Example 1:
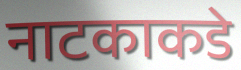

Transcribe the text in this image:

नाटकाकडे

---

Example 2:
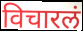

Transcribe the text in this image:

विचारलं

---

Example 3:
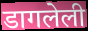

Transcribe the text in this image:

डागलेली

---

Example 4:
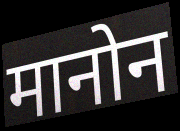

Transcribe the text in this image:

मानोन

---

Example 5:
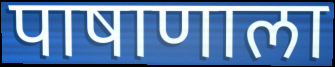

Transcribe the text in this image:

पाषाणाला